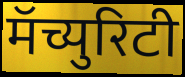
मॅच्युरिटी